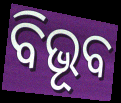
ବିଭୂବ